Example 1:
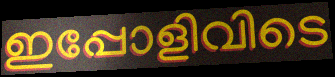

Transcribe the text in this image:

ഇപ്പോളിവിടെ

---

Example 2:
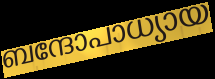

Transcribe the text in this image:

ബന്ദോപാധ്യായ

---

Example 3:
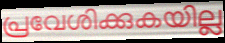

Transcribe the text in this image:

പ്രവേശിക്കുകയില്ല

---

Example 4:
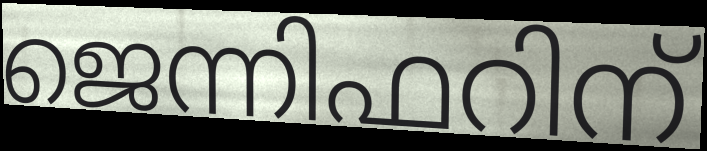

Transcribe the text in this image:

ജെന്നിഫറിന്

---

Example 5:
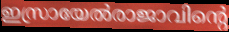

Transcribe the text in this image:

ഇസ്രായേൽരാജാവിന്റെ